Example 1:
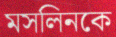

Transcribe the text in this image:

মসলিনকে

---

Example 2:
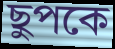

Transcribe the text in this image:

ছুপকে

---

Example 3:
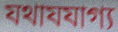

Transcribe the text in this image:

যথাযযাগ্য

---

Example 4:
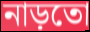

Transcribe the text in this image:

নাড়তো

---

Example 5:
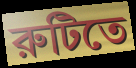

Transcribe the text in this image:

রুটিতে